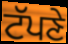
ਟੱਪਣੇ